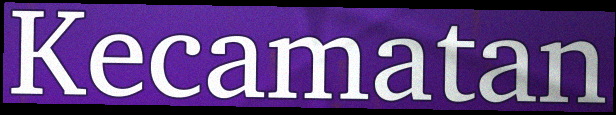
Kecamatan